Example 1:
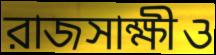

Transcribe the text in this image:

রাজসাক্ষীও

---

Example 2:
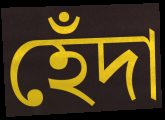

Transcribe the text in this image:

হেঁদা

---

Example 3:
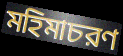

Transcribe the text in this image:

মহিমাচরণ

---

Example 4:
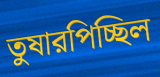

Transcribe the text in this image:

তুষারপিচ্ছিল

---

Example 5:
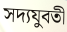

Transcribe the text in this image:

সদ্যযুবতী